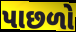
પાછળો